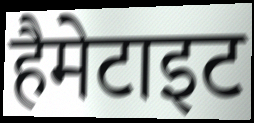
हैमेटाइट